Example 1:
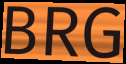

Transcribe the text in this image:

BRG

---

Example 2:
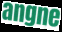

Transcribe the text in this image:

angne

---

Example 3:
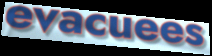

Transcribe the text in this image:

evacuees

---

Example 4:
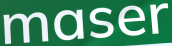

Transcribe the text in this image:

maser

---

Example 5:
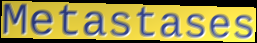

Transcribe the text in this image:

Metastases